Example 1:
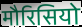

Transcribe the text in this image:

मौरिसियो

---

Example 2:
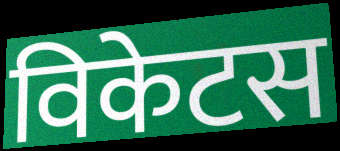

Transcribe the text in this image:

विकेटस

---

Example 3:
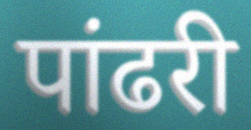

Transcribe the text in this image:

पांढरी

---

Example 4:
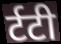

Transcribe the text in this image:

र्टटी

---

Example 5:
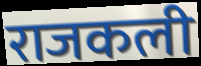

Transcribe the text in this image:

राजकली